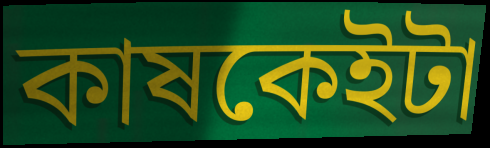
কাষকেইটা